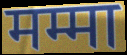
मम्मा